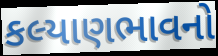
કલ્યાણભાવનો